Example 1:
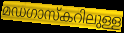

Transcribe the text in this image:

മഡഗാസ്കറിലുള്ള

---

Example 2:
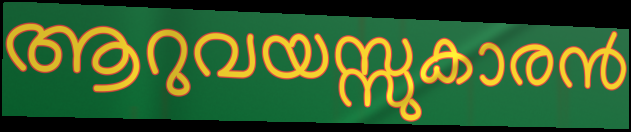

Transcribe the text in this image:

ആറുവയസ്സുകാരൻ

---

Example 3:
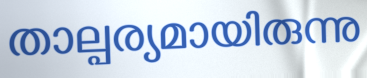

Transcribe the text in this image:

താല്പര്യമായിരുന്നു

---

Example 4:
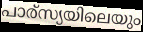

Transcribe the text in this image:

പാര്സ്യയിലെയും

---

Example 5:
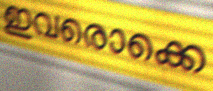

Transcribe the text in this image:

ഇവരൊക്കെ